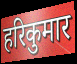
हरिकुमार